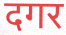
दगर